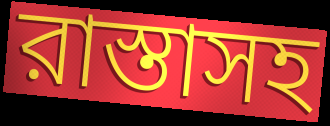
রাস্তাসহ